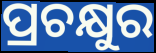
ପ୍ରଚକ୍ଷୁର